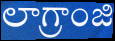
లాగ్రాంజి